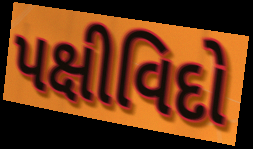
પક્ષીવિદો